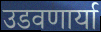
उडवणार्या